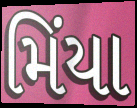
મિંયા